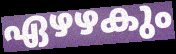
ഏഴഴകും